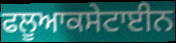
ਫਲੂਆਕਸੇਟਾਈਨ